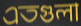
এতগুলা